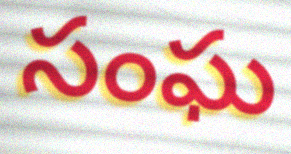
సంఘ